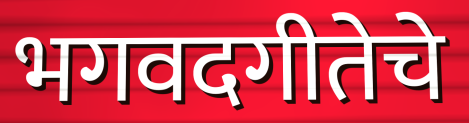
भगवदगीतेचे